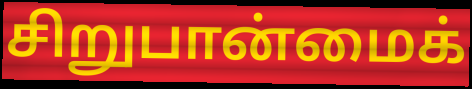
சிறுபான்மைக்